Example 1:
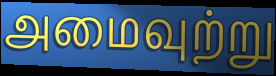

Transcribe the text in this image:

அமைவுற்று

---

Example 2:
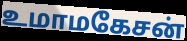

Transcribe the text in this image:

உமாமகேசன்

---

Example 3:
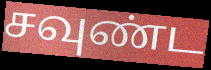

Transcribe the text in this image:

சவுண்ட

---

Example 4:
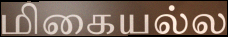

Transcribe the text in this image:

மிகையல்ல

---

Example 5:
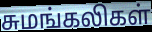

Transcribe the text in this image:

சுமங்கலிகள்